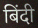
बिंदी